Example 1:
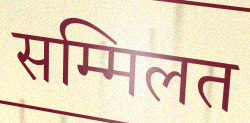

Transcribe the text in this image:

सम्मिलत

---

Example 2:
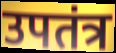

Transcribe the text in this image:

उपतंत्र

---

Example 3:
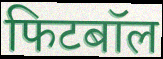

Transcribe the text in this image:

फिटबॉल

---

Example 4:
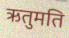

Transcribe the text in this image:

ऋतुमति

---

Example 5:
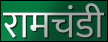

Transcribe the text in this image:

रामचंडी